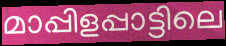
മാപ്പിളപ്പാട്ടിലെ